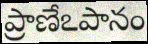
ప్రాణేఽపానం